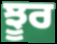
ਝੂਰ